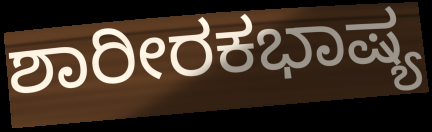
ಶಾರೀರಕಭಾಷ್ಯ